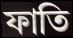
ফাতি